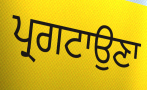
ਪ੍ਰਗਟਾਉਣਾ